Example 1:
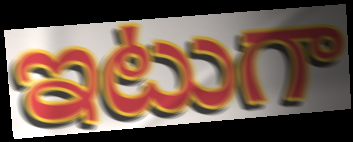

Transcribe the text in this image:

ఇటుగా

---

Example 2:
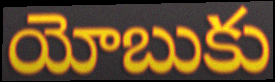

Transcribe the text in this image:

యోబుకు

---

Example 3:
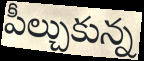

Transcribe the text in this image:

పీల్చుకున్న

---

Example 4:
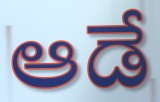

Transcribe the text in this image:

ఆడే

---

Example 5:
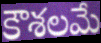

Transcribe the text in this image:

కౌశలమే